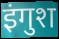
इंगुश